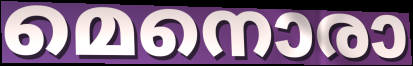
മെനൊരാ